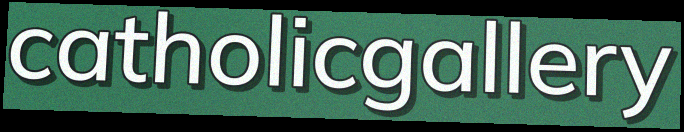
catholicgallery